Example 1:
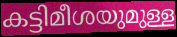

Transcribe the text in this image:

കട്ടിമീശയുമുള്ള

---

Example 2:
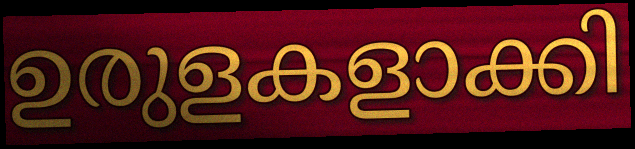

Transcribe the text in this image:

ഉരുളകളാക്കി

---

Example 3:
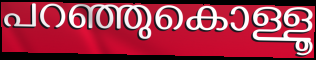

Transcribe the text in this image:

പറഞ്ഞുകൊള്ളൂ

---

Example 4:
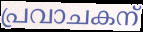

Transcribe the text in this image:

പ്രവാചകന്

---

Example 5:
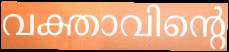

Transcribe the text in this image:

വക്താവിന്റെ